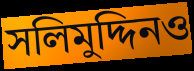
সলিমুদ্দিনও